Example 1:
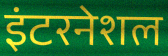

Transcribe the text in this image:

इंटरनेशल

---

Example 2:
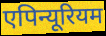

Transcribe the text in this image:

एपिन्यूरियम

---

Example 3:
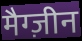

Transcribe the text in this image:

मैग्ज़ीन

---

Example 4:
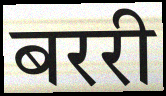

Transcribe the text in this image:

बररी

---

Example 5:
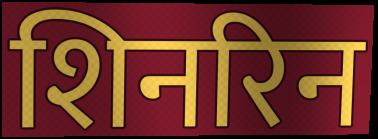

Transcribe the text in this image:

शिनरिन